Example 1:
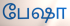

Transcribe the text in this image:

பேஷா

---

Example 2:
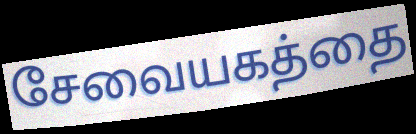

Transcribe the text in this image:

சேவையகத்தை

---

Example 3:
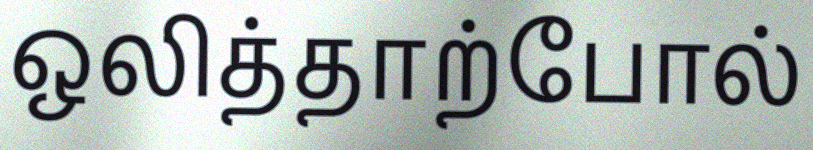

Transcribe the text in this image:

ஒலித்தாற்போல்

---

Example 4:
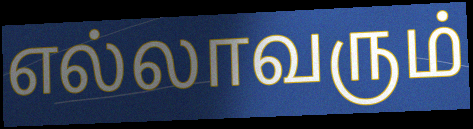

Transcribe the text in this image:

எல்லாவரும்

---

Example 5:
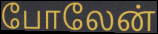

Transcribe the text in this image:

போலேன்